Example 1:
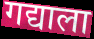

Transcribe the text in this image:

गद्याला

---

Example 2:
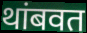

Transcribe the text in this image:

थांबवत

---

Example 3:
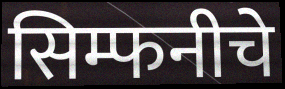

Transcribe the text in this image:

सिम्फनीचे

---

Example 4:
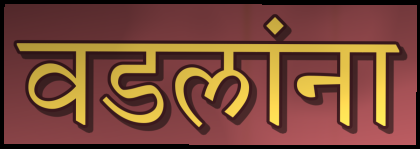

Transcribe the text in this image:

वडलांना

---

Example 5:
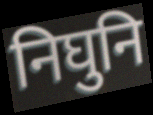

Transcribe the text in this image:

निघुनि